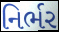
નિર્ભર